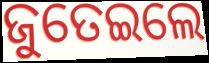
ଜୁତେଇଲେ